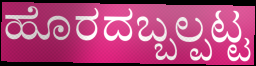
ಹೊರದಬ್ಬಲ್ಪಟ್ಟ